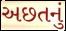
અછતનું